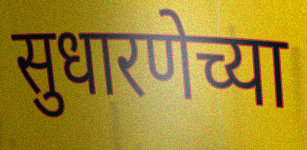
सुधारणेच्या